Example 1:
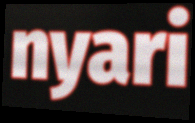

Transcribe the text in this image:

nyari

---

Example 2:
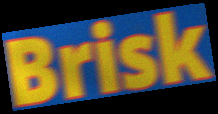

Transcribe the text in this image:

Brisk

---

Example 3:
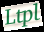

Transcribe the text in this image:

Ltpl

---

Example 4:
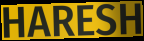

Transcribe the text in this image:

HARESH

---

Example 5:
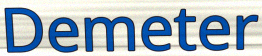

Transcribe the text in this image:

Demeter